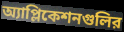
অ্যাপ্লিকেশনগুলির